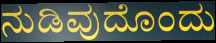
ನುಡಿವುದೊಂದು